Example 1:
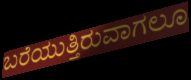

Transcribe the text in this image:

ಬರೆಯುತ್ತಿರುವಾಗಲೂ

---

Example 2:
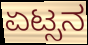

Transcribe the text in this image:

ಏಟ್ಸನ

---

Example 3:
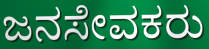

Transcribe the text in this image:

ಜನಸೇವಕರು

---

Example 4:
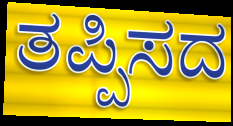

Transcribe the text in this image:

ತಪ್ಪಿಸದ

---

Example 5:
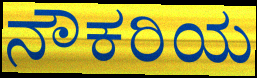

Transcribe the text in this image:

ನೌಕರಿಯ